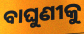
ବାଘୁଣୀକୁ